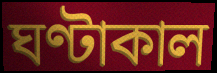
ঘণ্টাকাল